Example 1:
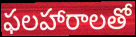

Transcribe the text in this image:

ఫలహారాలతో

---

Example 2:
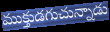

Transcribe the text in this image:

ముక్తుడగుచున్నాడు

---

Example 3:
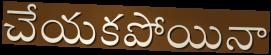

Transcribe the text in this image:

చేయకపోయినా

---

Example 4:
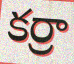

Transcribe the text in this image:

కర్రా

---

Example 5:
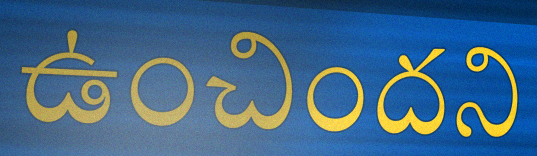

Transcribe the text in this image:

ఉంచిందని